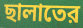
ছালাতের